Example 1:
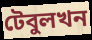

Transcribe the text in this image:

টেবুলখন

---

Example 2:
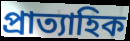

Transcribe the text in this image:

প্ৰাত্যাহিক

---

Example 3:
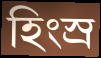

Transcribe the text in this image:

হিংস্ৰ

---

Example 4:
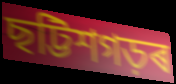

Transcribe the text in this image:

ছট্টিশগড়ৰ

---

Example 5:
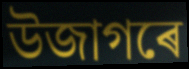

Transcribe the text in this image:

উজাগৰে